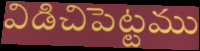
విడిచిపెట్టము